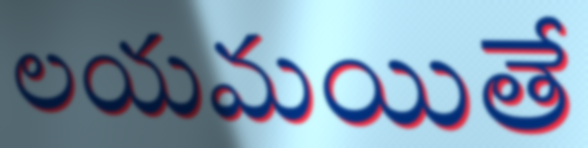
లయమయితే